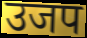
उजप